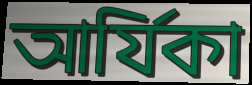
আর্যিকা